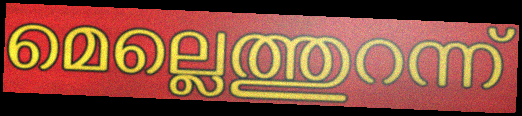
മെല്ലെത്തുറന്ന്